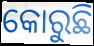
କୋରୁଛି